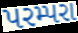
પરમ્પરા